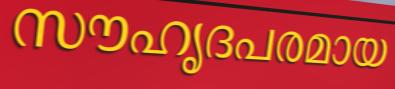
സൗഹൃദപരമായ